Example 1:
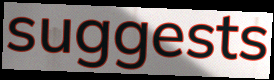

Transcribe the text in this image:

suggests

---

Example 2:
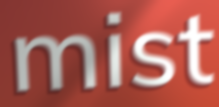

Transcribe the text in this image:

mist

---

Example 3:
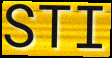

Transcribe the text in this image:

STI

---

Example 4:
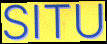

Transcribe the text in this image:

SITU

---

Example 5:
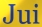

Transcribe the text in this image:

Jui